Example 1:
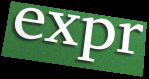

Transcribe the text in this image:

expr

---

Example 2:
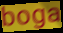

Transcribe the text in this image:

boga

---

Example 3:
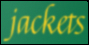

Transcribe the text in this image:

jackets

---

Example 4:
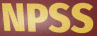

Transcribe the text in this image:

NPSS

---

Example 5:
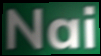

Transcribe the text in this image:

Nai